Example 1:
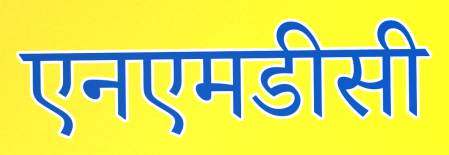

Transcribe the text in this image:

एनएमडीसी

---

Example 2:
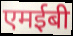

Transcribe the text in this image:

एमईबी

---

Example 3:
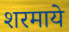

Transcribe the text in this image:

शरमाये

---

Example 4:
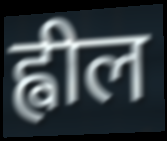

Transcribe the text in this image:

ह्वील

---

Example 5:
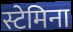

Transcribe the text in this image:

स्टेमिना